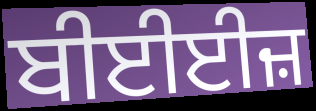
ਬੀਈਈਜ਼